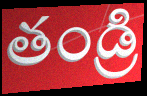
తండ్రి